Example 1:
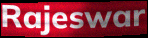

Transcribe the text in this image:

Rajeswar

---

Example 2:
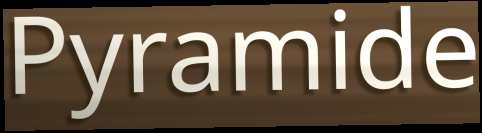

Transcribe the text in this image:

Pyramide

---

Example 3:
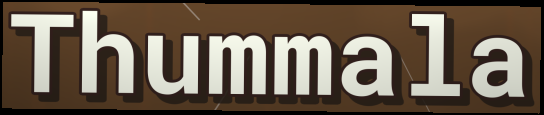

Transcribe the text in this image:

Thummala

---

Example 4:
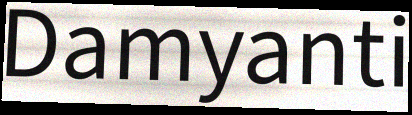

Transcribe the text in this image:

Damyanti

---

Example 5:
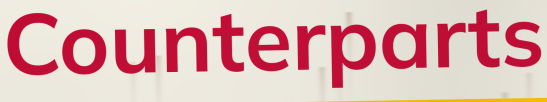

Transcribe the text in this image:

Counterparts